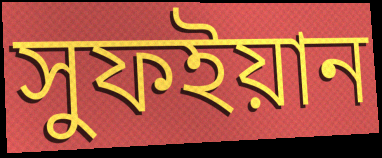
সুফইয়ান